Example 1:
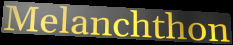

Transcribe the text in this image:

Melanchthon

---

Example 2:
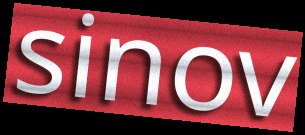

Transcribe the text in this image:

sinov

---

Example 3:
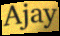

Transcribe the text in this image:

Ajay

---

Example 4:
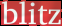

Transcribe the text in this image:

blitz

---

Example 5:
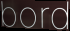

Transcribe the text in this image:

bord